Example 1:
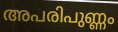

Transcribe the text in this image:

അപരിപുണ്ണം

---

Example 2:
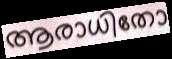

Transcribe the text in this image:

ആരാധിതോ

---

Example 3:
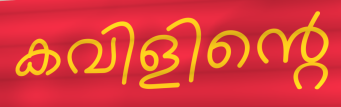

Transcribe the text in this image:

കവിളിന്റെ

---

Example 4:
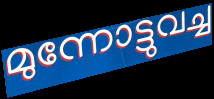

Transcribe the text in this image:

മുന്നോട്ടുവച്ച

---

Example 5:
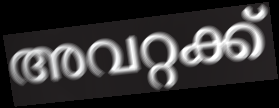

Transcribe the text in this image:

അവറ്റക്ക്